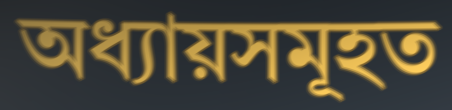
অধ্যায়সমূহত